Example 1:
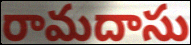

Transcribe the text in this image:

రామదాసు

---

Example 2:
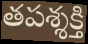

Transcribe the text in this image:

తపశ్శక్తి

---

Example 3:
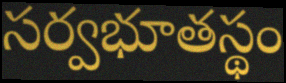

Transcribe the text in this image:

సర్వభూతస్థం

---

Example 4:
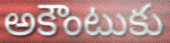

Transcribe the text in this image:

అకౌంటుకు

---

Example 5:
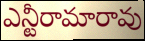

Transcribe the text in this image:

ఎన్టీరామారావు